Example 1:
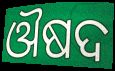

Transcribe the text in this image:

ଔଷଦ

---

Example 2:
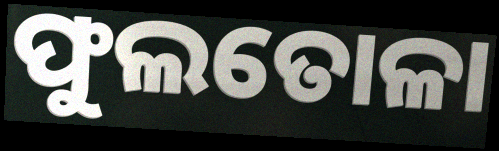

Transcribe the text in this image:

ଫୁଲତୋଳା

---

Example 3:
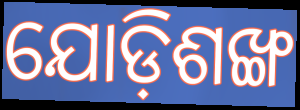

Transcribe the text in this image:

ଯୋଡ଼ିଶଙ୍ଖ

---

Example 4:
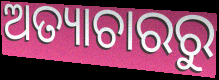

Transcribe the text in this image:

ଅତ୍ୟାଚାରରୁ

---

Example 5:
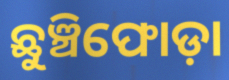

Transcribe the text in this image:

ଛୁଞ୍ଚିଫୋଡ଼ା